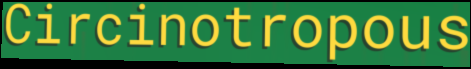
Circinotropous